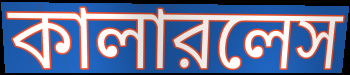
কালারলেস